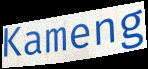
Kameng